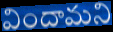
విందామని